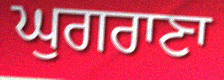
ਘੁਗਰਾਣਾ